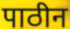
पाठीन